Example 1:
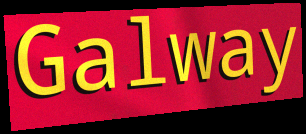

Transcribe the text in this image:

Galway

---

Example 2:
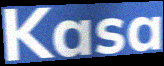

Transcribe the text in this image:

Kasa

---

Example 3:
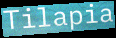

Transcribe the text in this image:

Tilapia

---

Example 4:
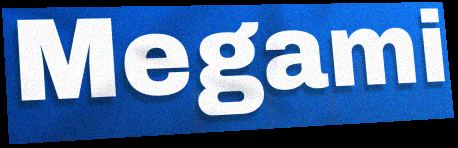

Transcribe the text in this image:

Megami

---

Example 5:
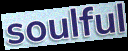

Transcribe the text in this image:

soulful